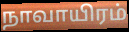
நாவாயிரம்